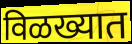
विळख्यात